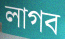
লাগব